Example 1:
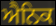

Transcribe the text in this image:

ਐਨਿਕ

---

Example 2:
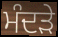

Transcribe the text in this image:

ਮੰਦੜੇ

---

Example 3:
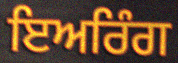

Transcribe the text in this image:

ਇਅਰਿੰਗ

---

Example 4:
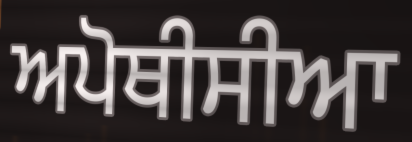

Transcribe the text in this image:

ਅਪੋਥੀਸੀਆ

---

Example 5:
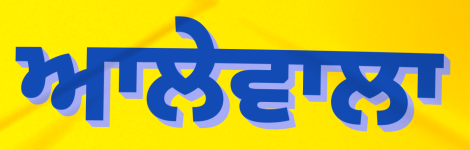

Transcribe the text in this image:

ਆਲੇਵਾਲਾ